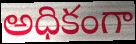
అధికంగా